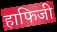
हाफिजी